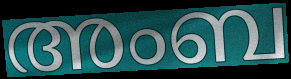
അംബ